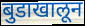
बुडाखालून